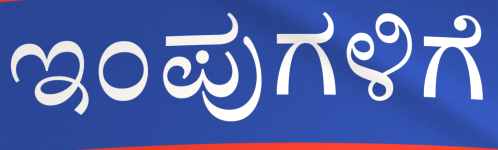
ಇಂಪುಗಳಿಗೆ